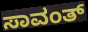
ಸಾವಂತ್